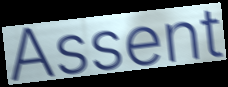
Assent